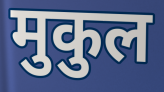
मुकुल